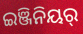
ଇଞ୍ଜିନିୟର୍